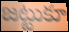
జట్టుకూ